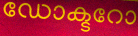
ഡോക്ടറോ